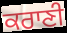
ਕਰਾਣੀ